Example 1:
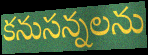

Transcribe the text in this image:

కనుసన్నలను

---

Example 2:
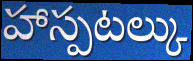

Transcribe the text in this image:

హాస్పటల్కు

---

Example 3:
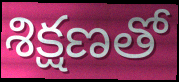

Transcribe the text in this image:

శిక్షణతో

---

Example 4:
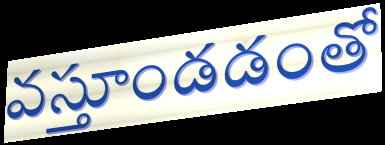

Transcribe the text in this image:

వస్తూండడంతో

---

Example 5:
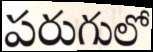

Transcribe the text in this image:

పరుగులో